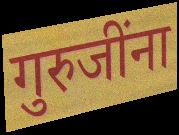
गुरुजींना